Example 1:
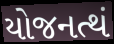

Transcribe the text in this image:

યોજનત્થં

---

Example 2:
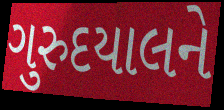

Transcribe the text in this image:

ગુરુદયાલને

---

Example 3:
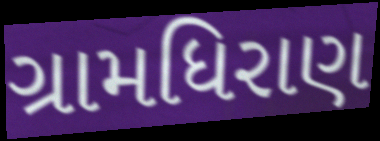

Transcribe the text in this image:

ગ્રામધિરાણ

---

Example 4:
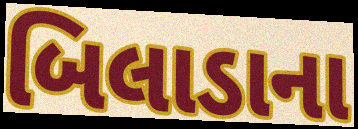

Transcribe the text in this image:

બિલાડાના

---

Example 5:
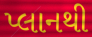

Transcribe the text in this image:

પ્લાનથી